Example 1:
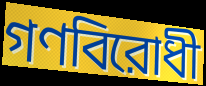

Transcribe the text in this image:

গণবিরোধী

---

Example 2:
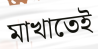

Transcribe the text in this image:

মাখাতেই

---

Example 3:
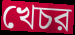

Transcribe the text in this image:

খেচর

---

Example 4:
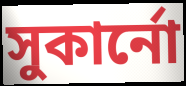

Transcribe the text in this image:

সুকার্নো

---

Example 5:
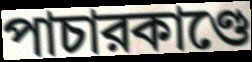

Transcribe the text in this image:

পাচারকাণ্ডে